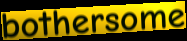
bothersome